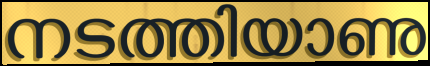
നടത്തിയാണു